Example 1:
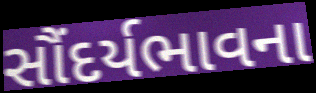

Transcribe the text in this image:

સૌંદર્યભાવના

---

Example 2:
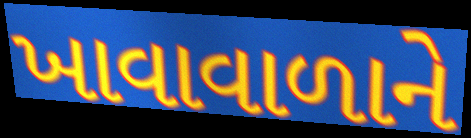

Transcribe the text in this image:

ખાવાવાળાને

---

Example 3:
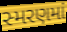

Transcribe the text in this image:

સ્મરણમાં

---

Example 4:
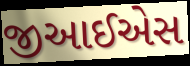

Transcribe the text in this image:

જીઆઈએસ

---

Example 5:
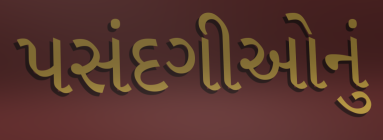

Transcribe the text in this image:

પસંદગીઓનું